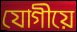
যোগীয়ে